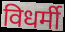
विधर्मी